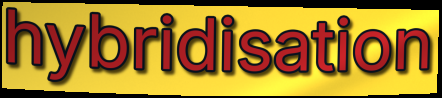
hybridisation